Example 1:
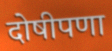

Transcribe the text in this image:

दोषीपणा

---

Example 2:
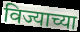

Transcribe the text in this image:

विज्याच्या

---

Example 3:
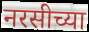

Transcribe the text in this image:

नरसीच्या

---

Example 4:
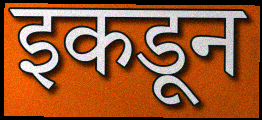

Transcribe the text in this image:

इकडून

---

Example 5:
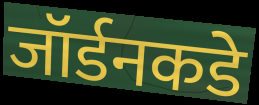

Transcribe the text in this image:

जॉर्डनकडे